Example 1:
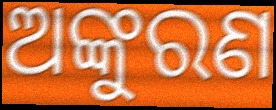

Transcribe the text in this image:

ଅଙ୍କୁରଣ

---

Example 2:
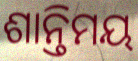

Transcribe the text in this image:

ଶାନ୍ତିମୟ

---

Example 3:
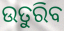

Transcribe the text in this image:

ଉତୁରିବ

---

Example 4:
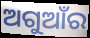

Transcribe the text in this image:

ଅଗୁଆଁର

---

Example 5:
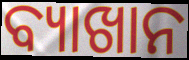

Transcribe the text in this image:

ବ୍ୟାଖାନ